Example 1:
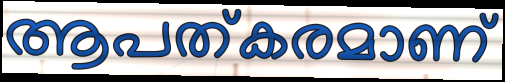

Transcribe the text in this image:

ആപത്കരമാണ്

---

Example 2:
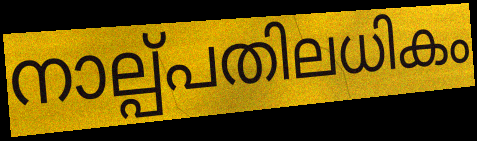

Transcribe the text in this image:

നാല്പ്പതിലധികം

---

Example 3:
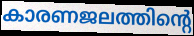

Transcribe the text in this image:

കാരണജലത്തിന്റെ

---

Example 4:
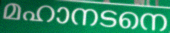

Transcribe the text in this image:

മഹാനടനെ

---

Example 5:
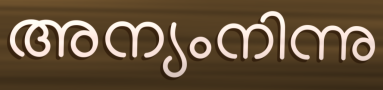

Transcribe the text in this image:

അന്യംനിന്നു